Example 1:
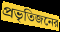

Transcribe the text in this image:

প্রভৃতিজনের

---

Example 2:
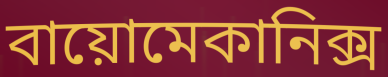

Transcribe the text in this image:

বায়োমেকানিক্স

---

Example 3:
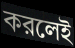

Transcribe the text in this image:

করলেই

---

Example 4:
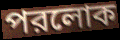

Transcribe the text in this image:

পরলোক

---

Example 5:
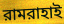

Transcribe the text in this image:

রামরাহাই